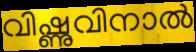
വിഷ്ണുവിനാൽ